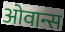
ओवान्स